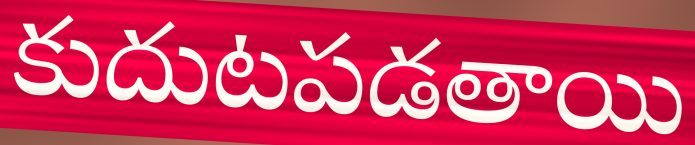
కుదుటపడతాయి